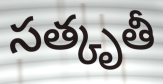
సత్కృతీ